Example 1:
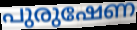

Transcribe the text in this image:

പുരുഷേണ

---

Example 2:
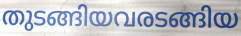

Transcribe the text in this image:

തുടങ്ങിയവരടങ്ങിയ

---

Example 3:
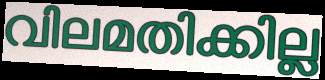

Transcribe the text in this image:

വിലമതിക്കില്ല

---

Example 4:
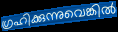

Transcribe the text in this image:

ഗ്രഹിക്കുന്നുവെങ്കിൽ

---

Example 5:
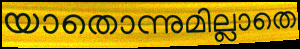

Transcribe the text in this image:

യാതൊന്നുമില്ലാതെ